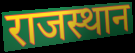
राजस्थान